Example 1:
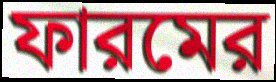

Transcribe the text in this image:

ফারমের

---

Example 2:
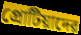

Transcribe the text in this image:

প্রোটিয়াদের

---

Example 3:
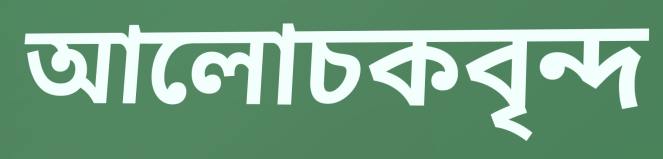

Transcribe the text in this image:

আলোচকবৃন্দ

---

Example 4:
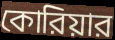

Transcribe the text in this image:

কোরিয়ার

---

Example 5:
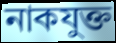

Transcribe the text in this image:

নাকযুক্ত